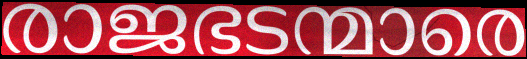
രാജഭടന്മാരെ